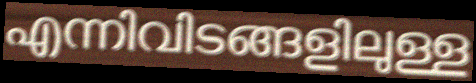
എന്നിവിടങ്ങളിലുള്ള